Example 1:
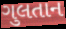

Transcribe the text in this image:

ગુલતાન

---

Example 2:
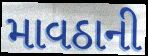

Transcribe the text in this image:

માવઠાની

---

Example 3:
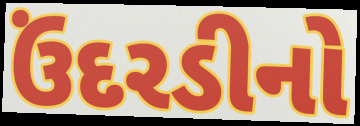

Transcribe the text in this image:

ઉંદરડીનો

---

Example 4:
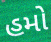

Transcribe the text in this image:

હમો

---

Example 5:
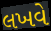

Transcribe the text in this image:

લખવે